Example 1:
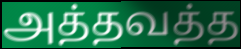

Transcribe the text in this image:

அத்தவத்த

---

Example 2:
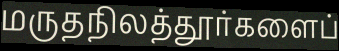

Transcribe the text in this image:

மருதநிலத்தூர்களைப்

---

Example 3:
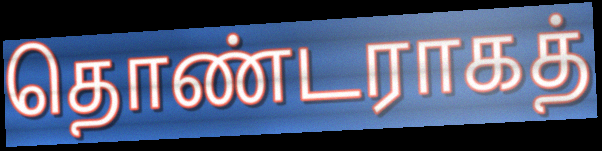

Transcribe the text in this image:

தொண்டராகத்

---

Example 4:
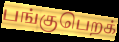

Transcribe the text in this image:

பங்குபெறக்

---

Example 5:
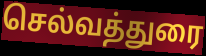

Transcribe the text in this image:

செல்வத்துரை